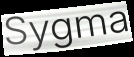
Sygma